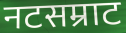
नटसम्राट